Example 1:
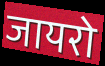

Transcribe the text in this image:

जायरो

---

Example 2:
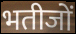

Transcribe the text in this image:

भतीजों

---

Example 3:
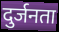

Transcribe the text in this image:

दुर्जनता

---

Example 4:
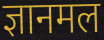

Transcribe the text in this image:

ज्ञानमल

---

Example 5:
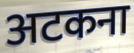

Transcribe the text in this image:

अटकना